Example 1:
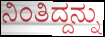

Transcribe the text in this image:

ನಿಂತಿದ್ದನ್ನು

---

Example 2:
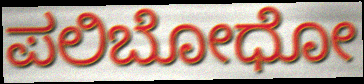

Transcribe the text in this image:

ಪಲಿಬೋಧೋ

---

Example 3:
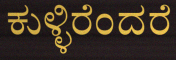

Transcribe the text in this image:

ಕುಳ್ಳಿರೆಂದರೆ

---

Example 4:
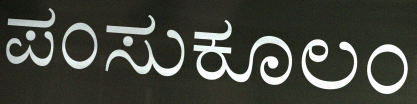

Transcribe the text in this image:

ಪಂಸುಕೂಲಂ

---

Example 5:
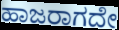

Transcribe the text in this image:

ಹಾಜರಾಗದೇ